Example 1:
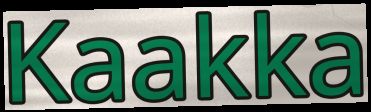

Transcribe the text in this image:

Kaakka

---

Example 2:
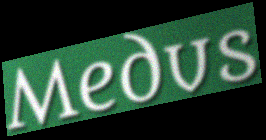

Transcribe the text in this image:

Medus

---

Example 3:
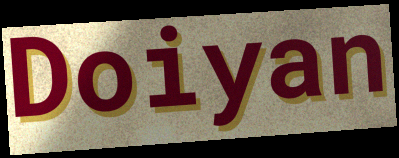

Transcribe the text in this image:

Doiyan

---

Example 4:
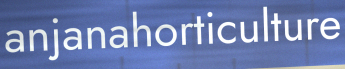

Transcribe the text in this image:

anjanahorticulture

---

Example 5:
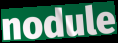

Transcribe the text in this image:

nodule